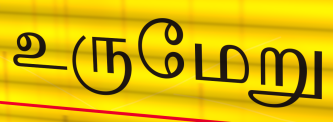
உருமேறு